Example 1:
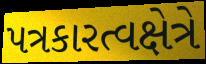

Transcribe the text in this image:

પત્રકારત્વક્ષેત્રે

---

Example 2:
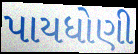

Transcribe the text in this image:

પાયધોણી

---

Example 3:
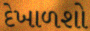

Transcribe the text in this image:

દેખાળશો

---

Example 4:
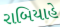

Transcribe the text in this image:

રાબિયાહે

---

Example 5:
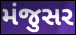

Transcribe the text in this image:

મંજુસર